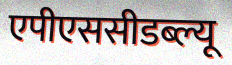
एपीएससीडब्ल्यू